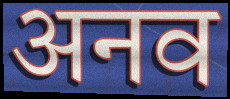
अनव